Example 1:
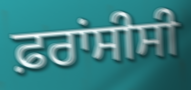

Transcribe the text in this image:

ਫ਼ਰਾਂਸੀਸੀ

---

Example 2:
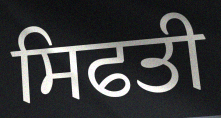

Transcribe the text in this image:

ਸਿਫਤੀ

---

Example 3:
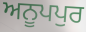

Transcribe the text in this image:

ਅਨੂਪਪੁਰ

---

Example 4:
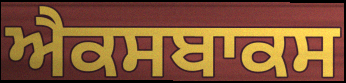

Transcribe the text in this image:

ਐਕਸਬਾਕਸ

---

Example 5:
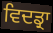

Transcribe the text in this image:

ਵਿਦਡ੍ਰਾ